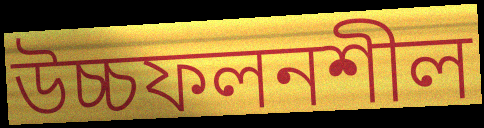
উচ্চফলনশীল